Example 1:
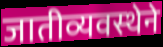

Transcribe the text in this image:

जातीव्यवस्थेने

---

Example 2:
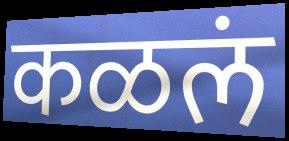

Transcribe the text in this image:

कळलं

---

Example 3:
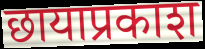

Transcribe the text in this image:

छायाप्रकाश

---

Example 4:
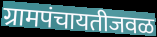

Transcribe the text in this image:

ग्रामपंचायतीजवळ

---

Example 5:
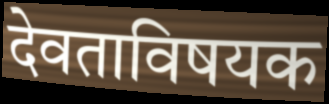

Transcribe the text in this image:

देवताविषयक